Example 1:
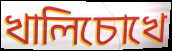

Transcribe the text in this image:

খালিচোখে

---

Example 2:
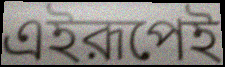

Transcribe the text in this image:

এইরূপেই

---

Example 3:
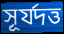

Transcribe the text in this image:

সূর্যদত্ত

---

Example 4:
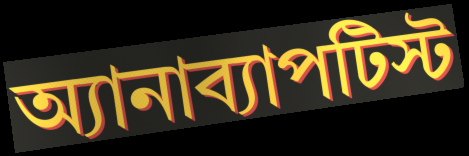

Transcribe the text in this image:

অ্যানাব্যাপটিস্ট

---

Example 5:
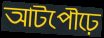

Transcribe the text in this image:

আটপৌঢ়ে